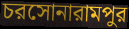
চরসোনারামপুর